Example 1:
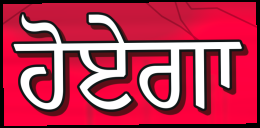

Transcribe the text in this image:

ਹੋਏਗਾ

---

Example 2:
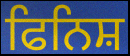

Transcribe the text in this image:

ਫਿਨਿਸ਼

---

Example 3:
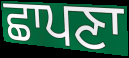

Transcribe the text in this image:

ਛਾਪਣਾ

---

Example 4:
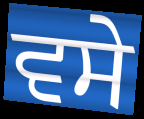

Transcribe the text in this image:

ਵਸੇ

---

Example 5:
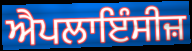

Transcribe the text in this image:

ਐਪਲਾਇੰਸੀਜ਼